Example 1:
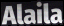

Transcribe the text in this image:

Alaila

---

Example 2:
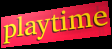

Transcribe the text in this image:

playtime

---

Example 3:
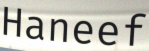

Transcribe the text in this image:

Haneef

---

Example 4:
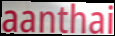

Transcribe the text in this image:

aanthai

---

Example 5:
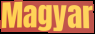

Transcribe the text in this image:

Magyar